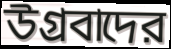
উগ্রবাদের